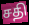
சதி